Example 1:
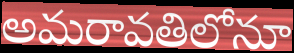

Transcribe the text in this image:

అమరావతిలోనూ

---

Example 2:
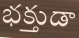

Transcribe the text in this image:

భక్తుడా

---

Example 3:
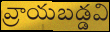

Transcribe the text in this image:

వ్రాయబడ్డవి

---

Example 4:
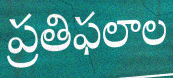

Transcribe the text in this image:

ప్రతిఫలాల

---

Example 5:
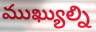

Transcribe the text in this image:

ముఖ్యుల్ని